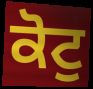
ਕੋਟੁ